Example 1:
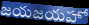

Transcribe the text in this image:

జయజయహో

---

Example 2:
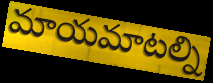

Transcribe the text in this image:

మాయమాటల్ని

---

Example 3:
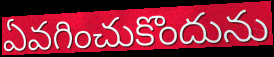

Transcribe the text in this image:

ఏవగించుకొందును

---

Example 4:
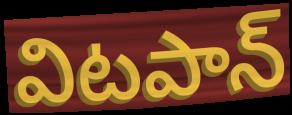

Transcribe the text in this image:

విటపాన్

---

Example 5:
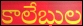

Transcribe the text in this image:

కాలేబుల